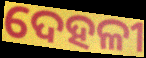
ଦେହଳୀ